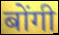
बोंगी